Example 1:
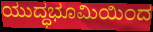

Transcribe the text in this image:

ಯುದ್ಧಭೂಮಿಯಿಂದ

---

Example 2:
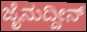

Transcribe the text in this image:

ಜೈನುದ್ದೀನ್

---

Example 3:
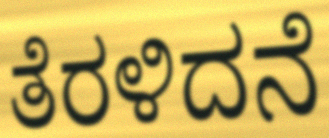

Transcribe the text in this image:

ತೆರಳಿದನೆ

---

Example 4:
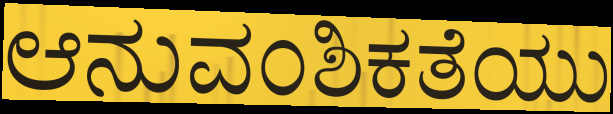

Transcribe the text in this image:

ಆನುವಂಶಿಕತೆಯು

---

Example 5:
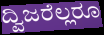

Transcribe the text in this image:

ದ್ವಿಜರೆಲ್ಲರೂ